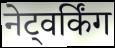
नेट्वर्किंग